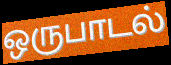
ஒருபாடல்